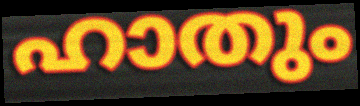
ഹാതും